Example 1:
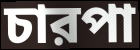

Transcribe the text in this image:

চারপা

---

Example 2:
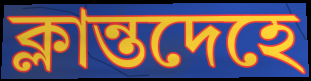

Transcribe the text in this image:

ক্লান্তদেহে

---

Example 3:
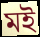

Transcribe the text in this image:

মই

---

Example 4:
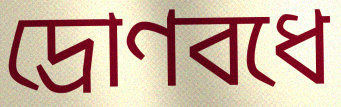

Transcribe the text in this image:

দ্রোণবধে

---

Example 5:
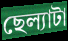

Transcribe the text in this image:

ছেল্যাটা